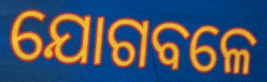
ଯୋଗବଳେ